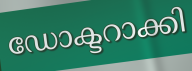
ഡോക്ടറാക്കി